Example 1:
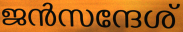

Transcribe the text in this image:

ജൻസന്ദേശ്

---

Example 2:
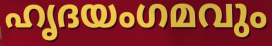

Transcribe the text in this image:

ഹൃദയംഗമവും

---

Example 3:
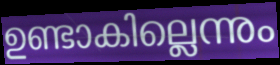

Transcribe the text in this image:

ഉണ്ടാകില്ലെന്നും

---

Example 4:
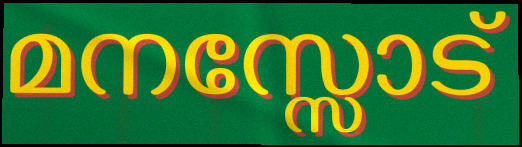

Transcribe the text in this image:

മനസ്സോട്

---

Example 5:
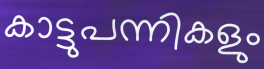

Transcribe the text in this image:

കാട്ടുപന്നികളും